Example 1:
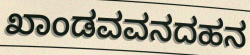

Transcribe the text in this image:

ಖಾಂಡವವನದಹನ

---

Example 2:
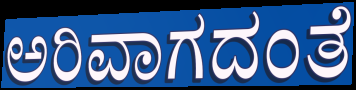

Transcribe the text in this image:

ಅರಿವಾಗದಂತೆ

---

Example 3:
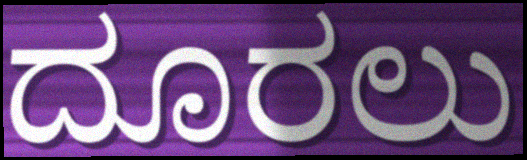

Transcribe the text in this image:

ದೂರಲು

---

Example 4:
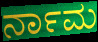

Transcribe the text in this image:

ರ್ನಾಮ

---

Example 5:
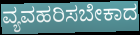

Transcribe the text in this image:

ವ್ಯವಹರಿಸಬೇಕಾದ